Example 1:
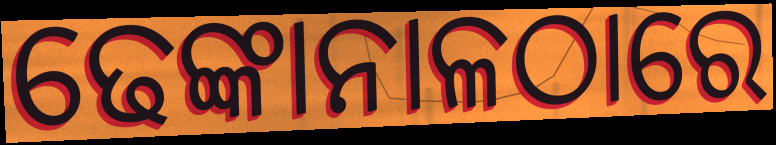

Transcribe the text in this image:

ଢେଙ୍କାନାଳଠାରେ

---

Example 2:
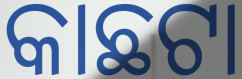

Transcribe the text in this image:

କାଛଟା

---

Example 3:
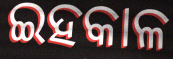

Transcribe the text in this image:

ଇହକାଳ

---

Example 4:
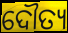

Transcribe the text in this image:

ଦୌତ୍ୟ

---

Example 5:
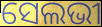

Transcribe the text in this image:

ସେଲଭୀ